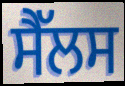
ਸੈੱਲਸ